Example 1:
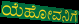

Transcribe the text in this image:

ಯೆಹೋವನಿಗೆ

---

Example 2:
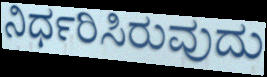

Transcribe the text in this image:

ನಿರ್ಧರಿಸಿರುವುದು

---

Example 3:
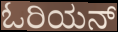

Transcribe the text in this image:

ಓರಿಯನ್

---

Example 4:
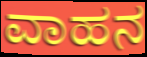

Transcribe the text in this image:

ವಾಹನ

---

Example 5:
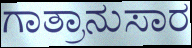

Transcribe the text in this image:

ಗಾತ್ರಾನುಸಾರ